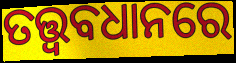
ତତ୍ତ୍ୱବଧାନରେ